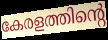
കേരളത്തിന്റെ